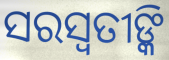
ସରସ୍ୱତୀଙ୍କି